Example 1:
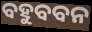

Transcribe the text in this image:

ବହୁବବନ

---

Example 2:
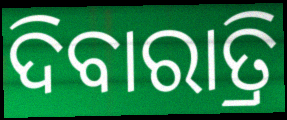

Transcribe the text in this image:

ଦିବାରାତ୍ରି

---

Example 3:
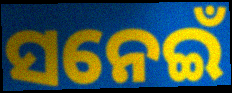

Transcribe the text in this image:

ସନେଇଁ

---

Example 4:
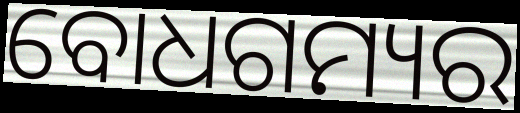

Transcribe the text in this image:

ବୋଧଗମ୍ୟର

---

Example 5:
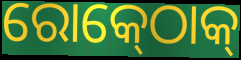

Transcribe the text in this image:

ରୋକ୍‍ଠୋକ୍